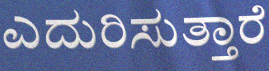
ಎದುರಿಸುತ್ತಾರೆ